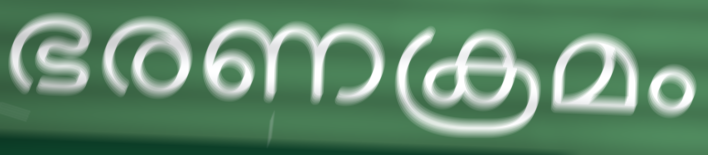
ഭരണക്രമം